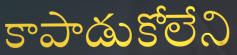
కాపాడుకోలేని